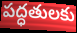
పద్ధతులకు